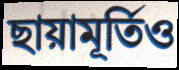
ছায়ামূর্তিও